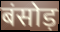
बंसोड़